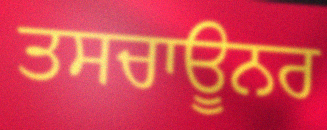
ਤਸਚਾਊਨਰ